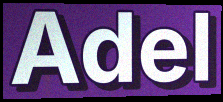
Adel